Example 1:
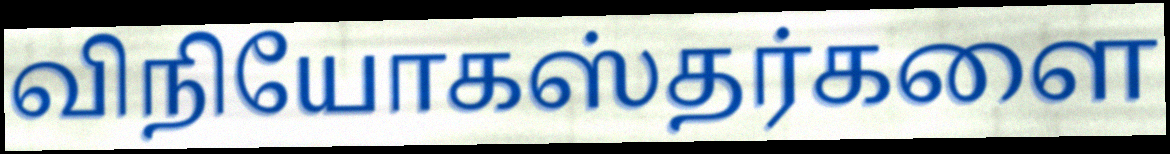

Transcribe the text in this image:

விநியோகஸ்தர்களை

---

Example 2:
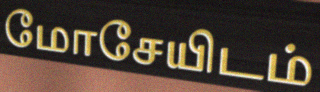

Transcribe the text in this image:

மோசேயிடம்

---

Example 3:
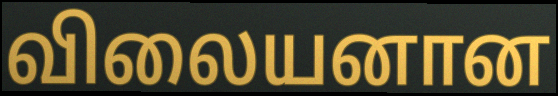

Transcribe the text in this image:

விலையனான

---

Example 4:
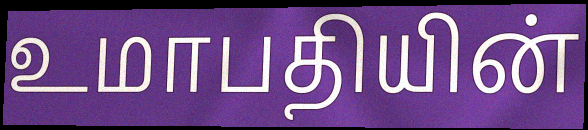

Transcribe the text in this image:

உமாபதியின்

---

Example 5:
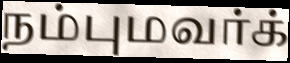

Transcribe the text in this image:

நம்புமவர்க்